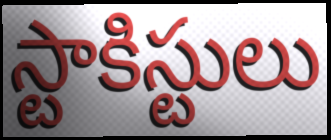
స్టాకిస్టులు